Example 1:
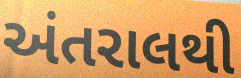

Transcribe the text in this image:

અંતરાલથી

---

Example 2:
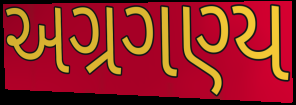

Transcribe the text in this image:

અગ્રગણ્ય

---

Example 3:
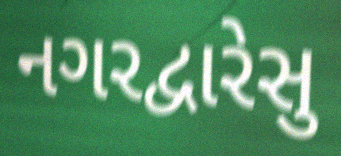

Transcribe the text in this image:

નગરદ્વારેસુ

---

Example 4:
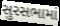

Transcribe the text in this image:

સુરસભામાં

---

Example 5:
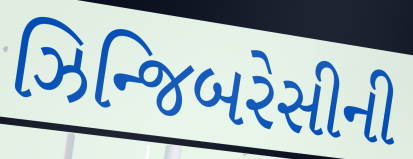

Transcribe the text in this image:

ઝિન્જિબરેસીની